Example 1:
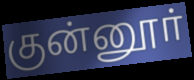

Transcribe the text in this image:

குன்னூர்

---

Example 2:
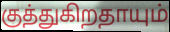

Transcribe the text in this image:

குத்துகிறதாயும்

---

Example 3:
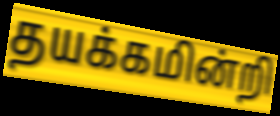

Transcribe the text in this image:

தயக்கமின்றி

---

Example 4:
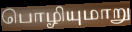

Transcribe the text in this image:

பொழியுமாறு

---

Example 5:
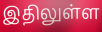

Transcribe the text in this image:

இதிலுள்ள